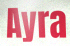
Ayra